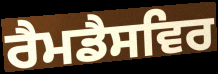
ਰੈਮਡੈਸਵਿਰ